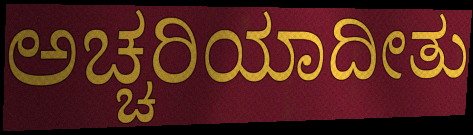
ಅಚ್ಚರಿಯಾದೀತು